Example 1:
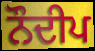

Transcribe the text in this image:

ਨੌਦੀਪ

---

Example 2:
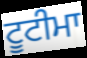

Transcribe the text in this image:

ਟੂਟੀਮਾ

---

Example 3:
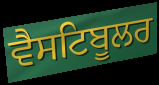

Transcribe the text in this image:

ਵੈਸਟਿਬੂਲਰ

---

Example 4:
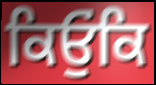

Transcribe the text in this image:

ਕਿਓੁਂਕਿ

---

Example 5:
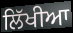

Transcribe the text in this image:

ਲਿੱਖੀਆ